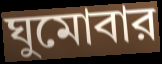
ঘুমোবার